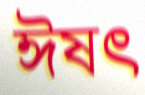
ঈষত্‍